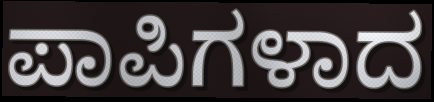
ಪಾಪಿಗಳಾದ